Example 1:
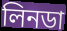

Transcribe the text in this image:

লিনডা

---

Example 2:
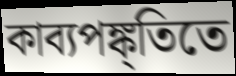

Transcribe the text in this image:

কাব্যপঙ্ক্তিতে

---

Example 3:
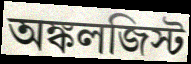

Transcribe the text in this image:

অঙ্কলজিস্ট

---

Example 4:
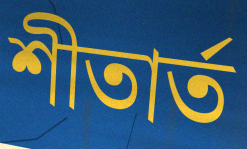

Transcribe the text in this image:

শীতার্ত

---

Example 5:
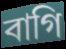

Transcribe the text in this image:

বাগি